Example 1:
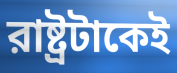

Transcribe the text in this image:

রাষ্ট্রটাকেই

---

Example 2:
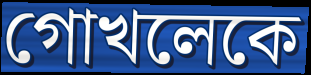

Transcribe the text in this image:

গোখলেকে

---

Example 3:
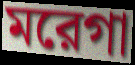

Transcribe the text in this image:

মরেগা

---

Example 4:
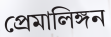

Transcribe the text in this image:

প্রেমালিঙ্গন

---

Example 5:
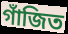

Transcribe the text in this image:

গাঁজিত